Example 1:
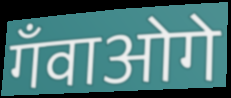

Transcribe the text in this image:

गँवाओगे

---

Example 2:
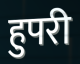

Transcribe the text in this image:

हुपरी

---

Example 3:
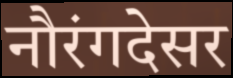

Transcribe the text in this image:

नौरंगदेसर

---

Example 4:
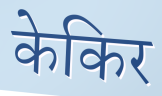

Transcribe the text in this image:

केकिर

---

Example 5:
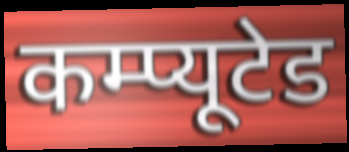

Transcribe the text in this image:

कम्प्यूटेड